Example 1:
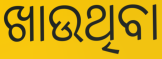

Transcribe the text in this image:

ଖାଉଥିବା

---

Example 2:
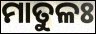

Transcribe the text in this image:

ମାତୁଳଃ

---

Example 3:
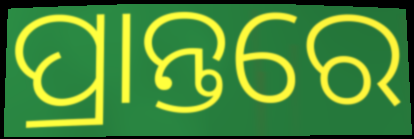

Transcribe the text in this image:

ପ୍ରାନ୍ତରେ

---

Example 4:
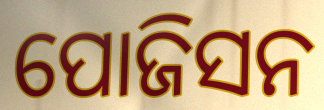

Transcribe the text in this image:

ପୋଜିସନ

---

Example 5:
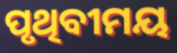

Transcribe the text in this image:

ପୃଥିବୀମୟ